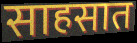
साहसात